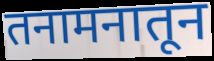
तनामनातून